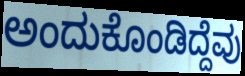
ಅಂದುಕೊಂಡಿದ್ದೆವು